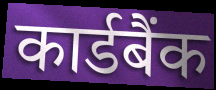
कार्डबैंक